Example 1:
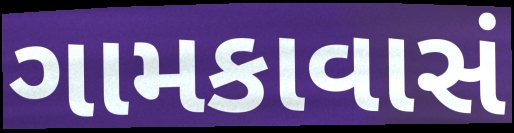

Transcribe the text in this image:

ગામકાવાસં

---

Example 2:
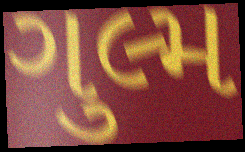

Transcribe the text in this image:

ગુલ્મ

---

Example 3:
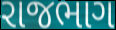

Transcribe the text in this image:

રાજભાગ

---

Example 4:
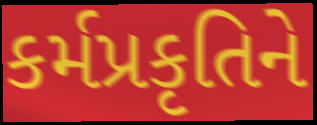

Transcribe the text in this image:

કર્મપ્રકૃતિને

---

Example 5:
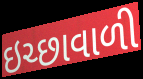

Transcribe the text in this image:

ઇચ્છાવાળી